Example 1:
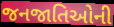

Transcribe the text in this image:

જનજાતિઓની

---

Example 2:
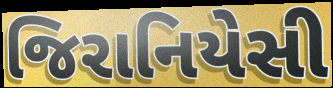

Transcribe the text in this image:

જિરાનિયેસી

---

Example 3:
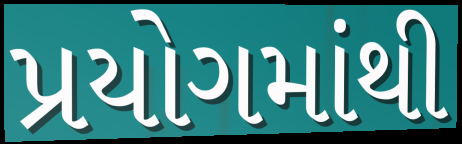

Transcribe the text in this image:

પ્રયોગમાંથી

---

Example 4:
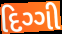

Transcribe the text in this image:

દિગ્ગી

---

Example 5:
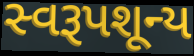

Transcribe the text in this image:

સ્વરૂપશૂન્ય